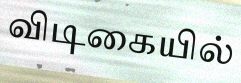
விடிகையில்